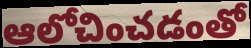
ఆలోచించడంతో